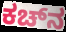
ಕಚ್‌ನ